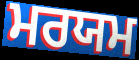
ਮਰਯਮ